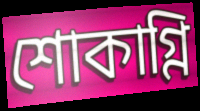
শোকাগ্নি